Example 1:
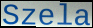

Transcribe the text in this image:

Szela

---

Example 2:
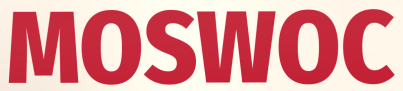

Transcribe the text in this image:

MOSWOC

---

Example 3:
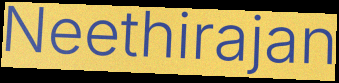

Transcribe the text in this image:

Neethirajan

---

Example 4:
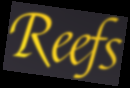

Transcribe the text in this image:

Reefs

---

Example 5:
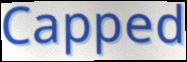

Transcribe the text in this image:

Capped